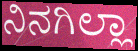
ನಿನಗಿಲ್ಲಾ